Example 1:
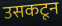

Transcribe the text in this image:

उसकटून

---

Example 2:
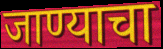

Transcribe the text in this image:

जाण्याचा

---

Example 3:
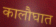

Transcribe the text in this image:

कालौघात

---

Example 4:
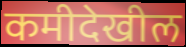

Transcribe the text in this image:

कमीदेखील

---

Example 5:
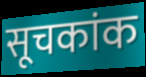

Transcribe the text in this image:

सूचकांक